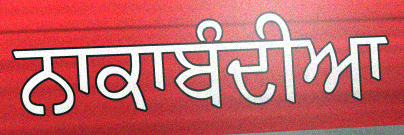
ਨਾਕਾਬੰਦੀਆ